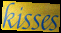
kisses